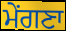
ਮੇਂਗਣਾ